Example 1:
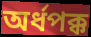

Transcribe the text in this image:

অর্ধপক্ক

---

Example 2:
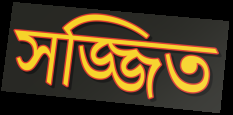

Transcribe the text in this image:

সজ্জিত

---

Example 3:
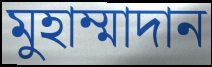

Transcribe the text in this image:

মুহাম্মাদান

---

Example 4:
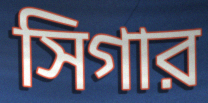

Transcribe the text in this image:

সিগার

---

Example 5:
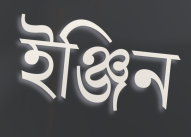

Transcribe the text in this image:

ইঞ্জিন